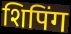
शिपिंग